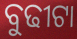
ବୁଢୀଟା